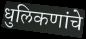
धुलिकणांचे